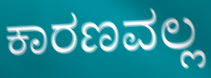
ಕಾರಣವಲ್ಲ